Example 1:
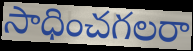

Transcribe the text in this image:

సాధించగలరా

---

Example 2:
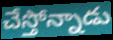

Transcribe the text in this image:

చేస్తోన్నాడు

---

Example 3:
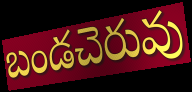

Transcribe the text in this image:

బండచెరువు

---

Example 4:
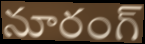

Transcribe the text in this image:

నూరంగ్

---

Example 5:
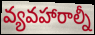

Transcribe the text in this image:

వ్యవహారాల్నీ